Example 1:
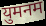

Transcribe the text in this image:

युमनम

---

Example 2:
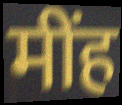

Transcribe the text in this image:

मींह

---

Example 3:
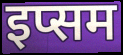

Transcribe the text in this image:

इप्सम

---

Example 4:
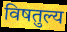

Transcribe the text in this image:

विषतुल्य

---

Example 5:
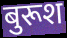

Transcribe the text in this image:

बुरूश